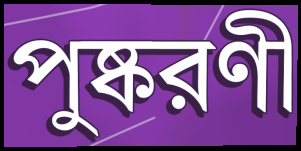
পুষ্করণী